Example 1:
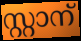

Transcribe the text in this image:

സ്റ്റാന്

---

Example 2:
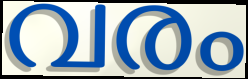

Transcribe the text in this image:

വരം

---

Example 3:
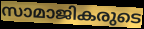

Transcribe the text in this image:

സാമാജികരുടെ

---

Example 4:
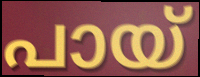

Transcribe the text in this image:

പായ്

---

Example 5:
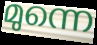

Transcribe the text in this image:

മുന്നെ